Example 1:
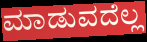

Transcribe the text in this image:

ಮಾಡುವದೆಲ್ಲ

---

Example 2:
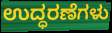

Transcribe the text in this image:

ಉದ್ಧರಣೆಗಳು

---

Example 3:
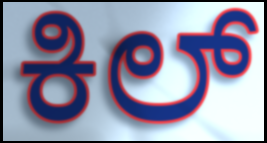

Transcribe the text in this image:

ಕಿಲ್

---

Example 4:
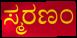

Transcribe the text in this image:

ಸ್ಮರಣಂ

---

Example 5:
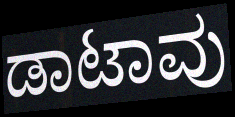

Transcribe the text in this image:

ಡಾಟಾವು